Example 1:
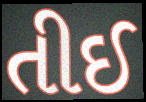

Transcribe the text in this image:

તીઈ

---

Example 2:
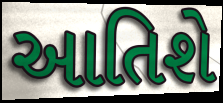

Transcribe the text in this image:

આતિશે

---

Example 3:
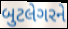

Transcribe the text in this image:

બુટલેગરને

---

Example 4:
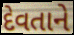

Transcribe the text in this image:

દેવતાને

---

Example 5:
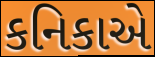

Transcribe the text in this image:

કનિકાએ